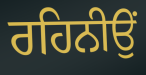
ਰਹਿਨੀਉਂ